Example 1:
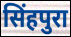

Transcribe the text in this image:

सिंहपुरा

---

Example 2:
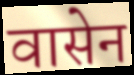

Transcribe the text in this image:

वासेन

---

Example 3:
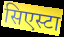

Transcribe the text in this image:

सिएस्टा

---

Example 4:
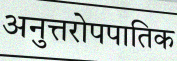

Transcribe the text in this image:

अनुत्तरोपपातिक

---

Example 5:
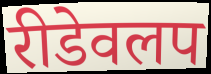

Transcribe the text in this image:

रीडेवलप